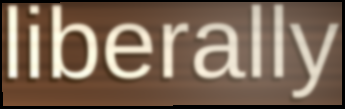
liberally